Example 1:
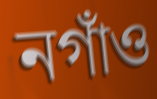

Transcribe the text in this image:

নগাঁও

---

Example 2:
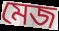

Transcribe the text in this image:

মেজ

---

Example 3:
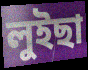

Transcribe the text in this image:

লুইছা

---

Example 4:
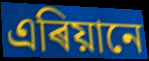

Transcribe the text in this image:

এৰিয়ানে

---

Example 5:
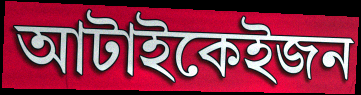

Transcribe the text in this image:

আটাইকেইজন